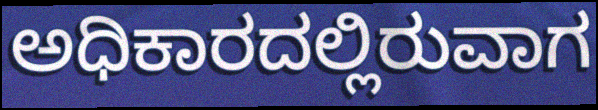
ಅಧಿಕಾರದಲ್ಲಿರುವಾಗ